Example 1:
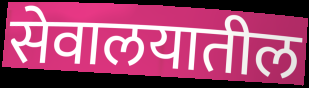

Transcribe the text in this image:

सेवालयातील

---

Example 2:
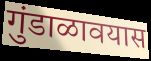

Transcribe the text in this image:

गुंडाळावयास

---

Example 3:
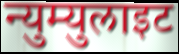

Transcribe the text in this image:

न्युम्युलाइट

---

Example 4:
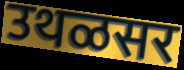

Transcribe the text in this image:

उथळसर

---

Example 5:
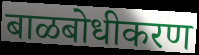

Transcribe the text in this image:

बाळबोधीकरण